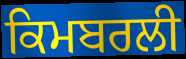
ਕਿਮਬਰਲੀ